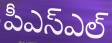
పీఎస్ఎల్